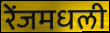
रेंजमधली